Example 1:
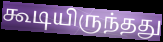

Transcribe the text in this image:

கூடியிருந்தது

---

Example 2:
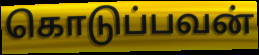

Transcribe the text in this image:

கொடுப்பவன்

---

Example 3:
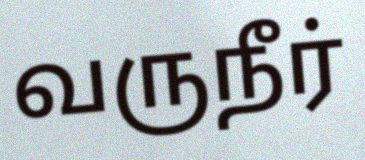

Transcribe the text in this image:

வருநீர்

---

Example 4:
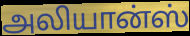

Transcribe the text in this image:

அலியான்ஸ்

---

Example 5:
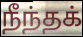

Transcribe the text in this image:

நீந்தக்